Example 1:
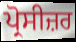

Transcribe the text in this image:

ਪ੍ਰੋਸੀਜ਼ਰ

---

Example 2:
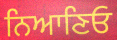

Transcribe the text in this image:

ਨਿਆਣਿਓ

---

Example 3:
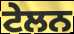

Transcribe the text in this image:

ਟੇਲਨ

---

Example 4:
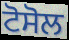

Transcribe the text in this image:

ਟੋਸੋਲ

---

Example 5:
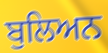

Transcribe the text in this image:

ਬੁਲਿਅਨ